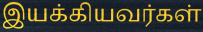
இயக்கியவர்கள்